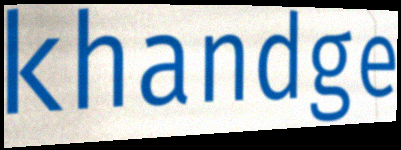
khandge